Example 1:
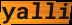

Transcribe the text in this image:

yalli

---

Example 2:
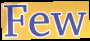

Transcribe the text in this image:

Few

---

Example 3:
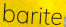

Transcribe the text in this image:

barite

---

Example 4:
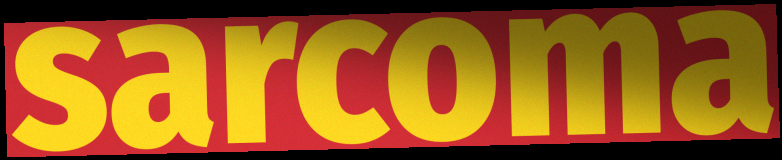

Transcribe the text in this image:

sarcoma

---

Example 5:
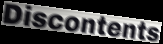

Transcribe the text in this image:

Discontents